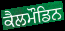
ਕੈਲਮੌਡਿਨ